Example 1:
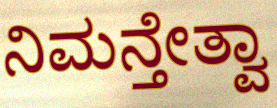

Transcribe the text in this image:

ನಿಮನ್ತೇತ್ವಾ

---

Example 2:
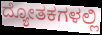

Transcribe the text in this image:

ದ್ಯೋತಕಗಳಲ್ಲಿ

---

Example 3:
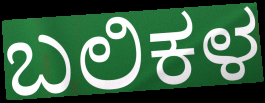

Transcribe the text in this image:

ಬಲಿಕಳ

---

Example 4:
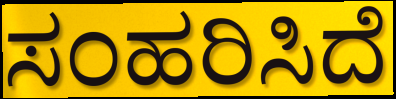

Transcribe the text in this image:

ಸಂಹರಿಸಿದೆ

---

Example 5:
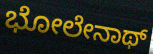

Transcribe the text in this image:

ಭೋಲೇನಾಥ್